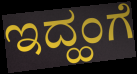
ಇದ್ಹಂಗೆ